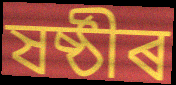
ষষ্ঠীৰ